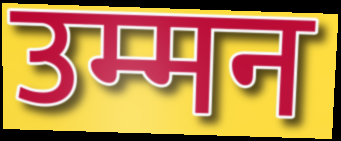
उम्मन